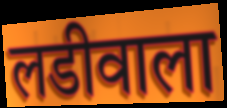
लडीवाला